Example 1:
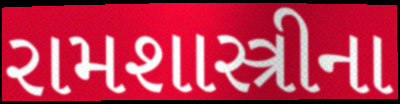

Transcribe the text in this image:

રામશાસ્ત્રીના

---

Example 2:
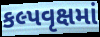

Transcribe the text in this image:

કલ્પવૃક્ષમાં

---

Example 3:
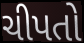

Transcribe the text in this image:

ચીપતો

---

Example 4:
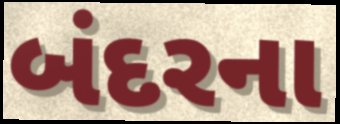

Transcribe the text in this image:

બંદરના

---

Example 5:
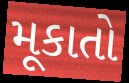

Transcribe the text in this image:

મૂકાતો